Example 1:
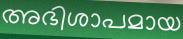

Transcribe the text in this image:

അഭിശാപമായ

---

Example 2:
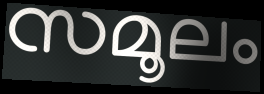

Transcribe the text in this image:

സമൂലം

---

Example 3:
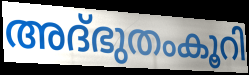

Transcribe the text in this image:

അദ്ഭുതംകൂറി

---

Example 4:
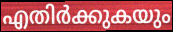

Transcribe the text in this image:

എതിർക്കുകയും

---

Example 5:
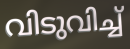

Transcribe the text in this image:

വിടുവിച്ച്